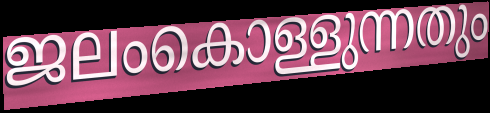
ജലംകൊള്ളുന്നതും